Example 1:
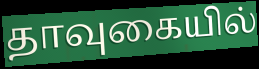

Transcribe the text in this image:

தாவுகையில்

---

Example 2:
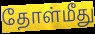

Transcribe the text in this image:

தோள்மீது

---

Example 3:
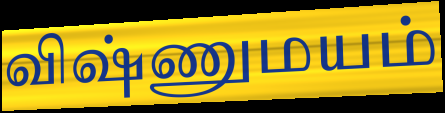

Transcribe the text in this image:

விஷ்ணுமயம்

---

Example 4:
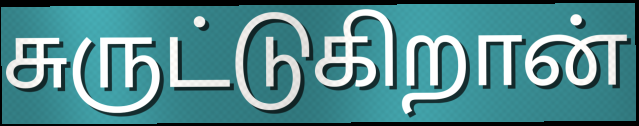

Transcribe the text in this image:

சுருட்டுகிறான்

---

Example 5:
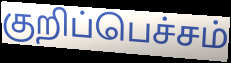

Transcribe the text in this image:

குறிப்பெச்சம்